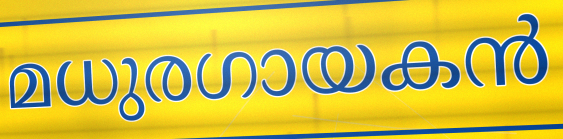
മധുരഗായകൻ